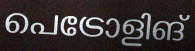
പെട്രോളിങ്